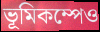
ভূমিকম্পেও